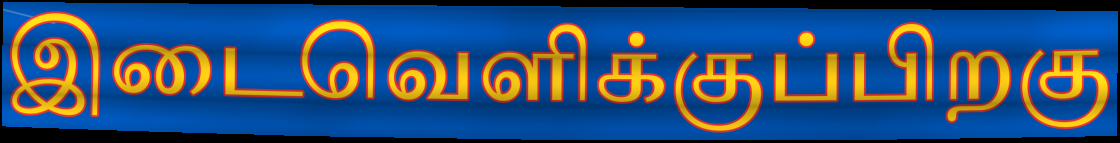
இடைவெளிக்குப்பிறகு